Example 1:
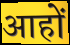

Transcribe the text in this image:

आहों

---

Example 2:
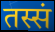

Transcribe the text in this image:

तस्सं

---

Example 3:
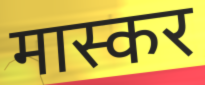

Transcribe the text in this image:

मास्कर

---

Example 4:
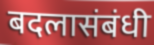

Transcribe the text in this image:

बदलासंबंधी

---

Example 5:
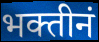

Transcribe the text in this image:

भक्तीनं